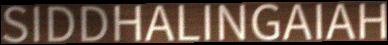
SIDDHALINGAIAH